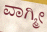
ವಾಗ್ಮೀ